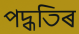
পদ্ধতিৰ